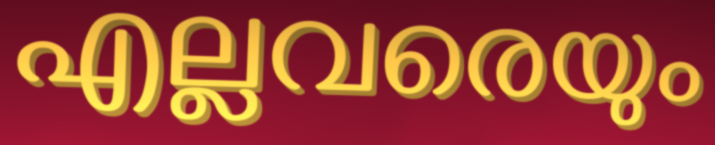
എല്ലവരെയും